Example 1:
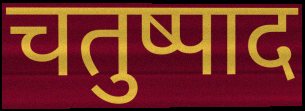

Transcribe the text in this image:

चतुष्पाद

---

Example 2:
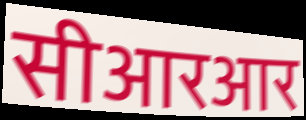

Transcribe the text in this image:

सीआरआर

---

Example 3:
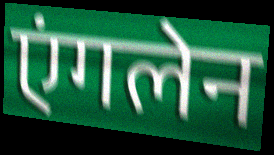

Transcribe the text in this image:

एंगलेन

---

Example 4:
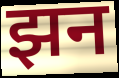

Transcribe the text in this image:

झन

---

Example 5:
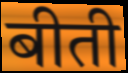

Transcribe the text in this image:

बीती